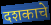
दशकाचे